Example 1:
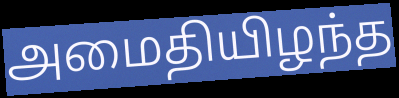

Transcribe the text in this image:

அமைதியிழந்த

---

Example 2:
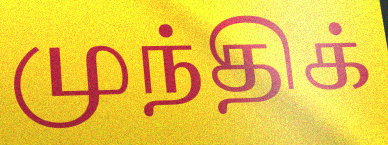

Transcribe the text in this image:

முந்திக்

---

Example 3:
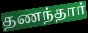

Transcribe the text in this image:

தணந்தார்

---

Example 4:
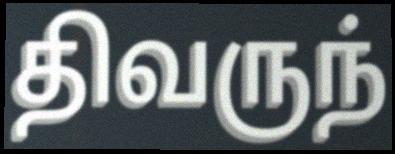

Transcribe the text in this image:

திவருந்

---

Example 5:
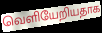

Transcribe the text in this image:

வெளியேறியதாக